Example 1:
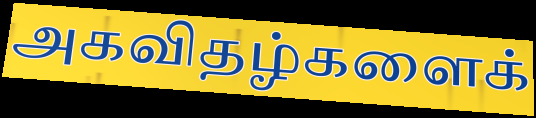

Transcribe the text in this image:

அகவிதழ்களைக்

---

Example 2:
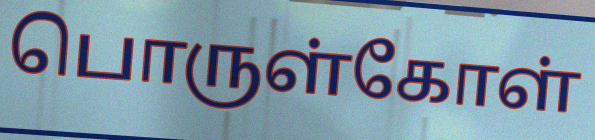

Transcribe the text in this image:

பொருள்கோள்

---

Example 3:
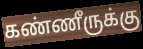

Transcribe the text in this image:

கண்ணீருக்கு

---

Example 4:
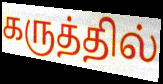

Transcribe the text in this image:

கருத்தில்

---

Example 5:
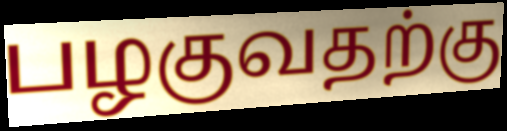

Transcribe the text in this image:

பழகுவதற்கு